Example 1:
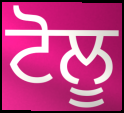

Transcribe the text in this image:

ਟੋਲੂ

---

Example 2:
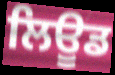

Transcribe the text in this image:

ਲਿਊਡ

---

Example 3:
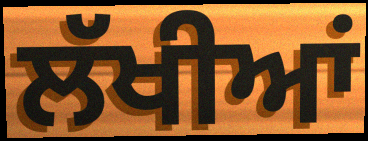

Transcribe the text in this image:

ਲੱਖੀਆਂ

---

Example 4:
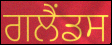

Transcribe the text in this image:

ਗਲੈਂਡਸ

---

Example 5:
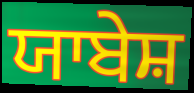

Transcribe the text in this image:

ਯਾਬੇਸ਼